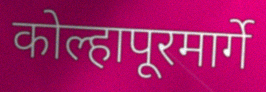
कोल्हापूरमार्गे